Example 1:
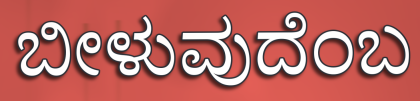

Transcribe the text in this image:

ಬೀಳುವುದೆಂಬ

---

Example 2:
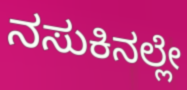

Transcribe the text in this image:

ನಸುಕಿನಲ್ಲೇ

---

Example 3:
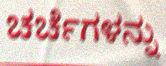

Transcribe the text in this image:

ಚರ್ಚೆಗಳನ್ನು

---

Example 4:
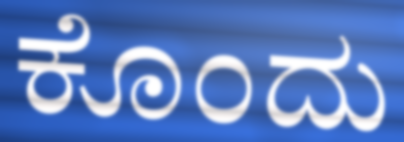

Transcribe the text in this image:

ಕೊಂದು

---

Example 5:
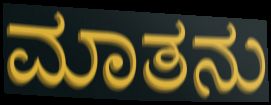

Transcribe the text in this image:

ಮಾತನು